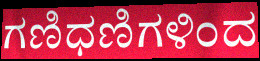
ಗಣಿಧಣಿಗಳಿಂದ